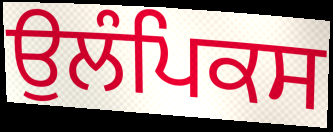
ਉਲੰਪਿਕਸ